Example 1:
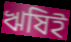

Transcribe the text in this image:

ঋষিই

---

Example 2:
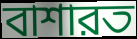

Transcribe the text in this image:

বাশারত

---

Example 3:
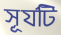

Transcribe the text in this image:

সূর্যটি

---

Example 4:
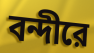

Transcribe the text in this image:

বন্দীরে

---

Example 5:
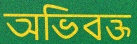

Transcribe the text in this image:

অভিবক্ত